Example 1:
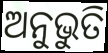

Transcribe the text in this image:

ଅନୁଭୁତି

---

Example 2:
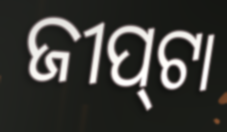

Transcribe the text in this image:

ଜୀପ୍‍ଟା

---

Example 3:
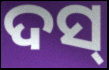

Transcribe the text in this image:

ଦସ୍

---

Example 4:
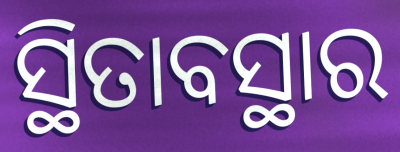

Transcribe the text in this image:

ସ୍ଥିତାବସ୍ଥାର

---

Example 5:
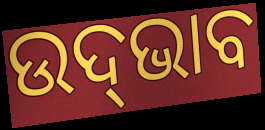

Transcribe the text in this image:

ଉଦ୍‍ଭାବ